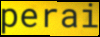
perai